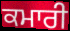
ਕਮਾਰੀ